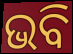
ଭବି